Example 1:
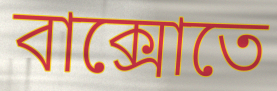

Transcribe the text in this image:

বাক্সোতে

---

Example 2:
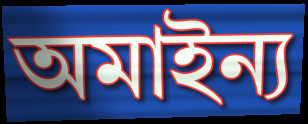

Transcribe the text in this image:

অমাইন্য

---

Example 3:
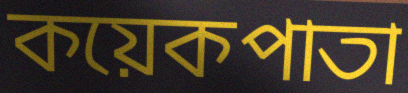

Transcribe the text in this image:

কয়েকপাতা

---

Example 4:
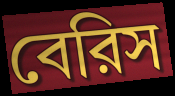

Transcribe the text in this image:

বেরিস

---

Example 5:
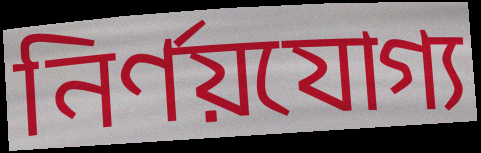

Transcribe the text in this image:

নির্ণয়যোগ্য